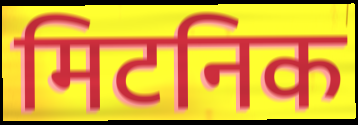
मिटनिक